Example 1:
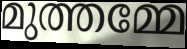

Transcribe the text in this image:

മുത്തമ്മേ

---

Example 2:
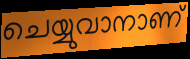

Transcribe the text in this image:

ചെയ്യുവാനാണ്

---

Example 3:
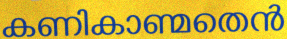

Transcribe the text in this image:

കണികാണ്മതെൻ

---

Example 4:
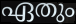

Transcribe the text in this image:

ഏതും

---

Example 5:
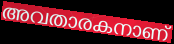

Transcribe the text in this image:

അവതാരകനാണ്